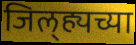
जिल्ह्यच्या